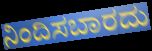
ನಿಂದಿಸಬಾರದು